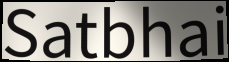
Satbhai